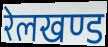
रेलखण्ड